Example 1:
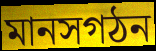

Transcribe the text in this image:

মানসগঠন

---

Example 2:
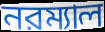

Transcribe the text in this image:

নরম্যাল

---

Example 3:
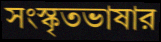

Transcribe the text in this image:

সংস্কৃতভাষার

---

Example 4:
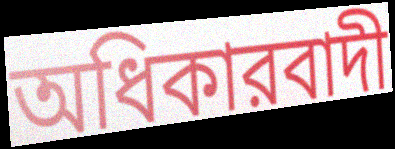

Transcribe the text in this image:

অধিকারবাদী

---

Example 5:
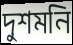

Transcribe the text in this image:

দুশমনি